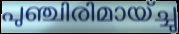
പുഞ്ചിരിമായ്ച്ചു